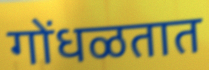
गोंधळतात